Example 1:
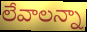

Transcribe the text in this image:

లేవాలన్నా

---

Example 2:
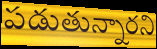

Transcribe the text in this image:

పడుతున్నారని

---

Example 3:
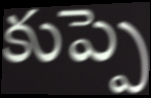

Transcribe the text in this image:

కుప్పె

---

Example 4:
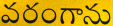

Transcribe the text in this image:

వరంగాను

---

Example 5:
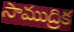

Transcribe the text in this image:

సాముద్రిక